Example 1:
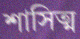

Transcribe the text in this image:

শাসিত্ম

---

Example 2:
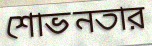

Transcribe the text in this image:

শোভনতার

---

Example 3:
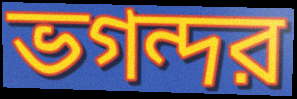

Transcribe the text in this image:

ভগন্দর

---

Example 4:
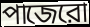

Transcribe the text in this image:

পাজেরো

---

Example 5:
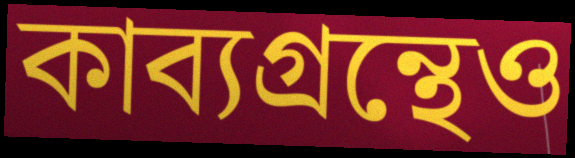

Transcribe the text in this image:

কাব্যগ্রন্থেও